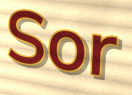
Sor